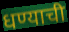
धण्याची